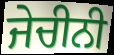
ਜੇਚੀਨੀ